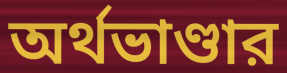
অর্থভাণ্ডার